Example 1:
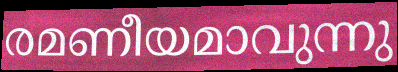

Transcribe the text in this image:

രമണീയമാവുന്നു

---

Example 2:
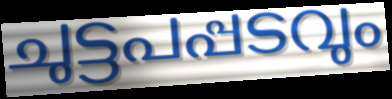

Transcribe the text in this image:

ചുട്ടപപ്പടവും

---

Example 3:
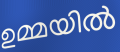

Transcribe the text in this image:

ഉമ്മയിൽ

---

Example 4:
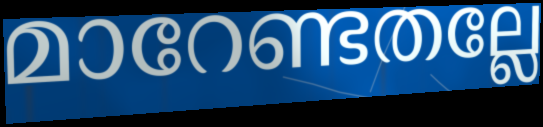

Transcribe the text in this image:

മാറേണ്ടതല്ലേ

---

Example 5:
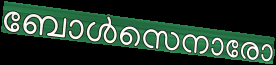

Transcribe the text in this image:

ബോൾസെനാരോ